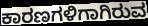
ಕಾರಣಗಳಿಗಾಗಿರುವ